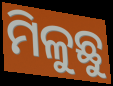
ମିଳୁଛୁ